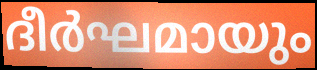
ദീർഘമായും